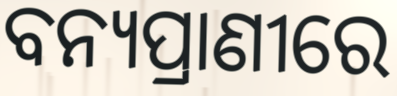
ବନ୍ୟପ୍ରାଣୀରେ